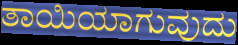
ತಾಯಿಯಾಗುವುದು